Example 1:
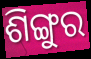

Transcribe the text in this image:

ଶିଙ୍ଗୁର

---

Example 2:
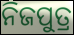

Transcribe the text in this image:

ନିଜପୁତ୍ର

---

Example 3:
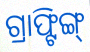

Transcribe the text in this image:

ଗ୍ରାଫ୍ଟିଙ୍ଗ୍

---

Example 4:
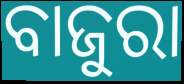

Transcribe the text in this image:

ବାଜୁରା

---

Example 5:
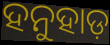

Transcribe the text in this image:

ହନୁହାଡ଼